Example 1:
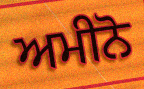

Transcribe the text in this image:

ਅਮੀਨੋ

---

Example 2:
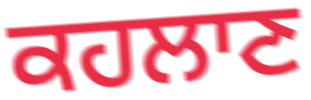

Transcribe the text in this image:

ਕਹਲਾਣ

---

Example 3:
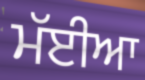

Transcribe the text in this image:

ਮੱਈਆ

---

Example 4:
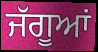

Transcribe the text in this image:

ਜੱਗੂਆਂ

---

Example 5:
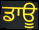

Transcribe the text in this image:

ਡਾਊ